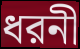
ধরনী